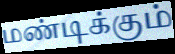
மண்டிக்கும்